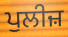
ਪੁਲੀਜ਼